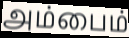
அம்பைம்